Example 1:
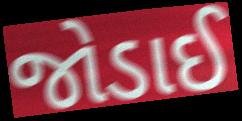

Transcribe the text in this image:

જોડાઈ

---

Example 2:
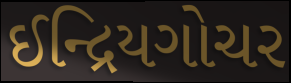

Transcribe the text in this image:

ઈન્દ્રિયગોચર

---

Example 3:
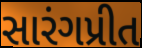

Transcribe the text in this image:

સારંગપ્રીત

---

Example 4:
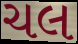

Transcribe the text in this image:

ચલ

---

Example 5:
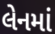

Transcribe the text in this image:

લેનમાં